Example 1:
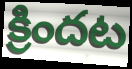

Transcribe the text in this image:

క్రిందట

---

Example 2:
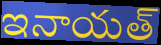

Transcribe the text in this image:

ఇనాయత్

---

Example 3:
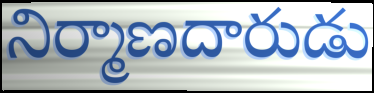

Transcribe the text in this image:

నిర్మాణదారుడు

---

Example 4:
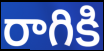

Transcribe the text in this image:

రాగికి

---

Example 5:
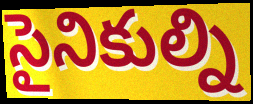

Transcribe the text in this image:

సైనికుల్ని